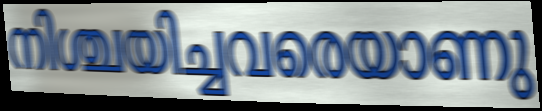
നിശ്ചയിച്ചവരെയാണു